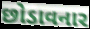
છોડાવનાર